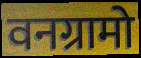
वनग्रामो